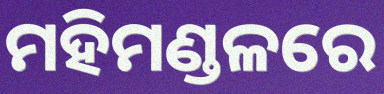
ମହିମଣ୍ଡଳରେ